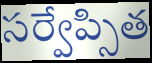
సర్వేప్సిత